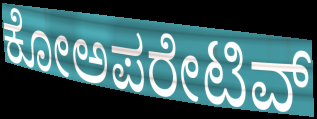
ಕೋಅಪರೇಟಿವ್